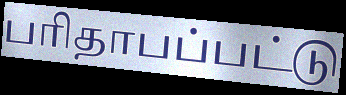
பரிதாபப்பட்டு